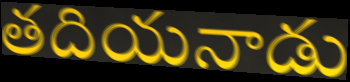
తదియనాడు